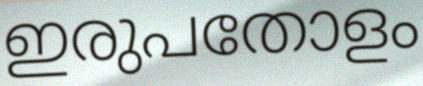
ഇരുപതോളം